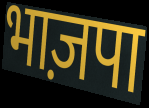
भाज़पा